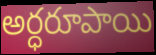
అర్ధరూపాయి